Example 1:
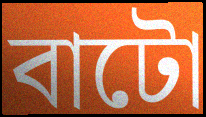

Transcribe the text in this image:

বাটো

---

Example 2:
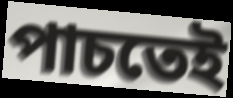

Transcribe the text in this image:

পাচতেই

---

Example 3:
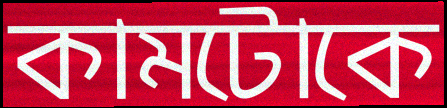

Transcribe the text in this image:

কামটোকে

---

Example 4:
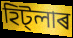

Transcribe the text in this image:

হিট্‌লাৰ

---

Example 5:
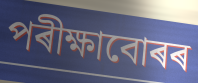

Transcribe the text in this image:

পৰীক্ষাবোৰৰ